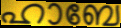
ഹാബേ